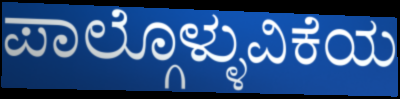
ಪಾಲ್ಗೊಳ್ಳುವಿಕೆಯ